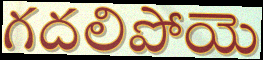
గదలిపోయె